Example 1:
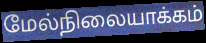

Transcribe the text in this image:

மேல்நிலையாக்கம்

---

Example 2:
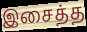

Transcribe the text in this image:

இசைத்த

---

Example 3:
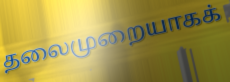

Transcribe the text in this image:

தலைமுறையாகக்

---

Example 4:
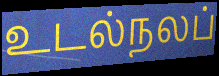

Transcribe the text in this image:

உடல்நலப்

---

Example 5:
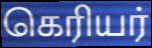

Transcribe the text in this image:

கெரியர்